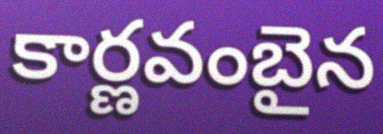
కార్ణవంబైన